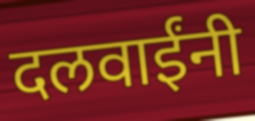
दलवाईंनी